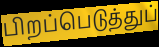
பிறப்பெடுத்துப்